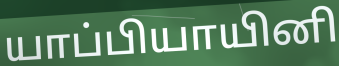
யாப்பியாயினி